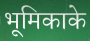
भूमिकाके